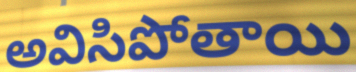
అవిసిపోతాయి